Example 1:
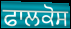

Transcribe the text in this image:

ਫਾਲਕੋਸ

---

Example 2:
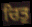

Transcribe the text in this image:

ਚਿਤੁ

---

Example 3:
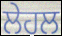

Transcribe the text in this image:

ਲੇਹਲ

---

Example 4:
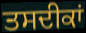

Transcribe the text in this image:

ਤਸਦੀਕਾਂ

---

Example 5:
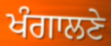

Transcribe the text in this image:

ਖੰਗਾਲਣੇ